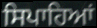
ਸਿਪਾਹਿਆਂ